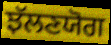
ਝੱਲਣਯੋਗ